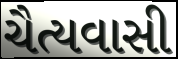
ચૈત્યવાસી